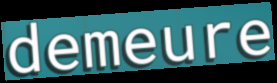
demeure